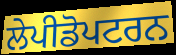
ਲੇਪੀਡੋਪਟਰਨ